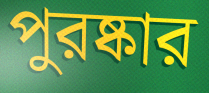
পুরষ্কার